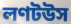
লণটউস